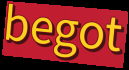
begot